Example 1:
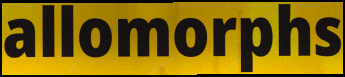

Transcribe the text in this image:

allomorphs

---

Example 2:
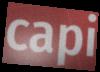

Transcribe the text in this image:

capi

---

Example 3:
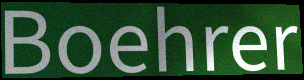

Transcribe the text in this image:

Boehrer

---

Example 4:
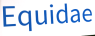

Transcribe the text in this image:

Equidae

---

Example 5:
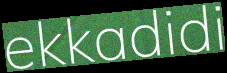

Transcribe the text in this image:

ekkadidi